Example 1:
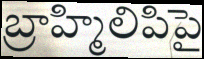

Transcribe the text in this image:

బ్రాహ్మిలిపిపై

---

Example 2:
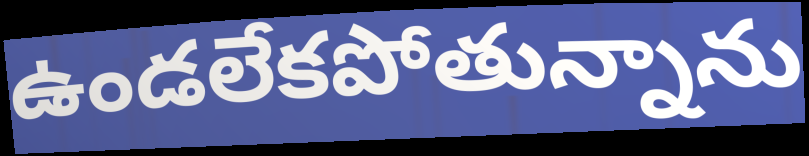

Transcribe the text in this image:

ఉండలేకపోతున్నాను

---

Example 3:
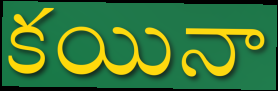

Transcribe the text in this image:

కయినా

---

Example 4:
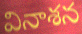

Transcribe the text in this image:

వినాశన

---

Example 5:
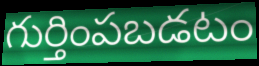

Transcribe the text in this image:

గుర్తింపబడటం